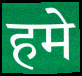
हमे